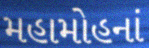
મહામોહનાં